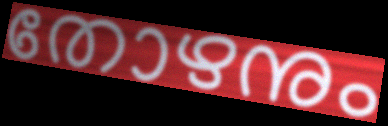
തോഴനും